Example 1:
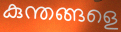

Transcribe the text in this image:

കുന്തങ്ങളെ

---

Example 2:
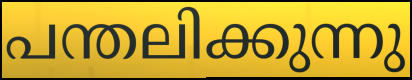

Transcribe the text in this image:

പന്തലിക്കുന്നു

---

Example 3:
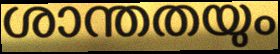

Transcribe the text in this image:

ശാന്തതയും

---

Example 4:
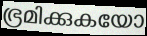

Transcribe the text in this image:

ഭ്രമിക്കുകയോ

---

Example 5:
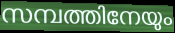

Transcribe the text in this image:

സമ്പത്തിനേയും